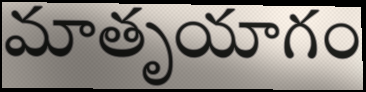
మాతృయాగం